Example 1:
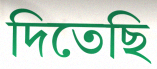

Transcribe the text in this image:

দিতেছি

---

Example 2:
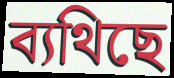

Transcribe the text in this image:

ব্যথিছে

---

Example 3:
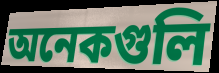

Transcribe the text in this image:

অনেকগুলি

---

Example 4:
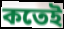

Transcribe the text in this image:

কতেই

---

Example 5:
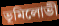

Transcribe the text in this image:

ভূমিলোভী